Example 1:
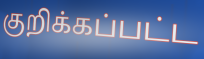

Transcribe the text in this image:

குறிக்கப்பட்ட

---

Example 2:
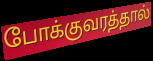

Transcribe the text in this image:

போக்குவரத்தால்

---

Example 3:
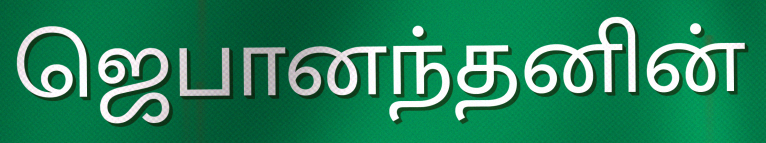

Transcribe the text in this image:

ஜெபானந்தனின்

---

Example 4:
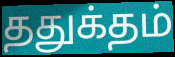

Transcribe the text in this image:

ததுக்தம்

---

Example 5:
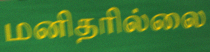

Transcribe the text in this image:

மனிதரில்லை